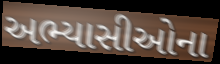
અભ્યાસીઓના